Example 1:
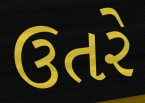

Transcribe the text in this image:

ઉતરે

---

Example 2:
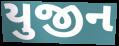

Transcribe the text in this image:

યુજીન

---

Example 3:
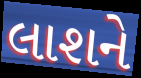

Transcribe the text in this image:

લાશને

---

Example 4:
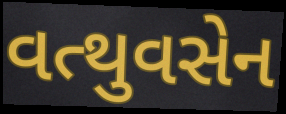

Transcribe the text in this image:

વત્થુવસેન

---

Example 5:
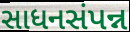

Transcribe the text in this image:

સાધનસંપન્ન